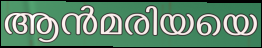
ആൻമരിയയെ